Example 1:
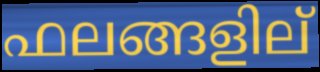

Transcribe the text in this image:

ഫലങ്ങളില്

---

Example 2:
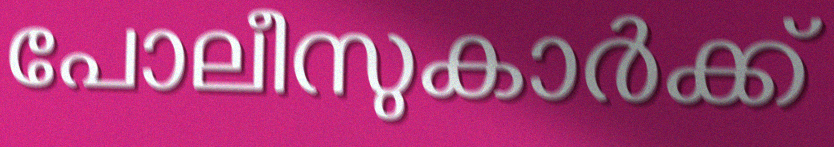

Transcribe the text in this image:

പോലീസുകാർക്ക്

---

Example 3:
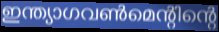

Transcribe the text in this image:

ഇന്ത്യാഗവൺമെന്റിന്റെ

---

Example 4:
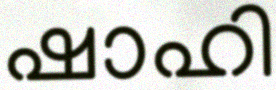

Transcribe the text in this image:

ഷാഹി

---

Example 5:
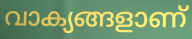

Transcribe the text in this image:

വാക്യങ്ങളാണ്